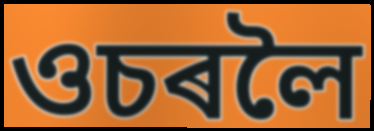
ওচৰলৈ